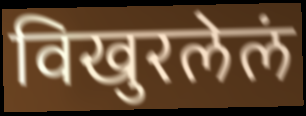
विखुरलेलं